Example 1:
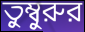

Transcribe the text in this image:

তুম্বুরুর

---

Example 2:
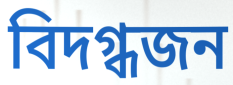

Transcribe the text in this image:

বিদগ্ধজন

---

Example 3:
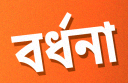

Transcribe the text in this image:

বর্ধনা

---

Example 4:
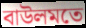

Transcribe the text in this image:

বাউলমতে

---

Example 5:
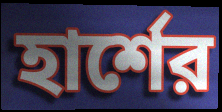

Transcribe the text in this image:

হার্শের